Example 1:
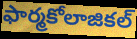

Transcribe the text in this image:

ఫార్మకోలాజికల్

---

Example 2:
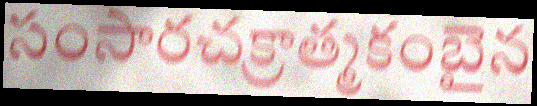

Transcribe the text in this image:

సంసారచక్రాత్మకంబైన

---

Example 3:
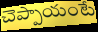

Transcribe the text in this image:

చెప్పాయంటే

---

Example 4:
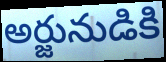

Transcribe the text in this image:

అర్జునుడికి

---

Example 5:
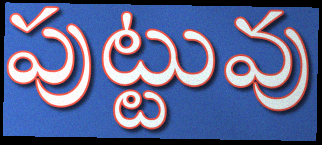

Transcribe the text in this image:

పుట్టువు